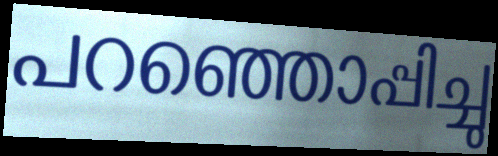
പറഞ്ഞൊപ്പിച്ചു